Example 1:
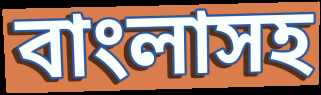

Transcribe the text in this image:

বাংলাসহ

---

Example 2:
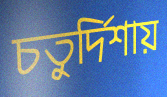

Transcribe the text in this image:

চতুর্দিশায়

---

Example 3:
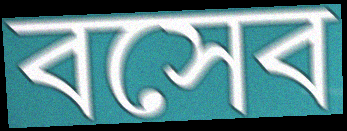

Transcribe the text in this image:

বসেব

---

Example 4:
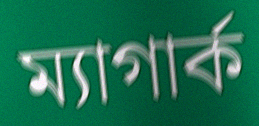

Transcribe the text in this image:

ম্যাগার্ক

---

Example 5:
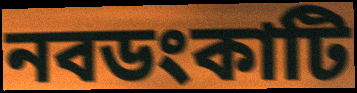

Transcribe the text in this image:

নবডংকাটি